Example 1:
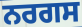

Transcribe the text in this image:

ਨਰਗਸ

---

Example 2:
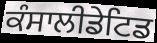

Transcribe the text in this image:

ਕੰਸਾਲੀਡੇਟਿਡ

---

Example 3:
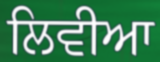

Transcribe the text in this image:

ਲਿਵੀਆ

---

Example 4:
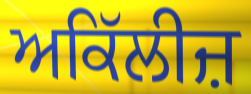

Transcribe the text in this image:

ਅਕਿੱਲੀਜ਼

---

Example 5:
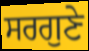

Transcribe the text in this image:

ਸਰਗੁਣੇ